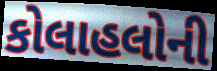
કોલાહલોની